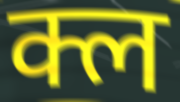
क्ल